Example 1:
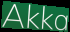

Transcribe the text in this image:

Akka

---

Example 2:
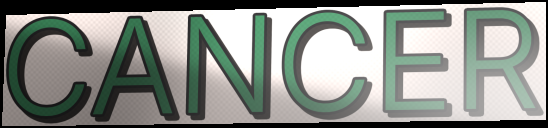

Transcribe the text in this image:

CANCER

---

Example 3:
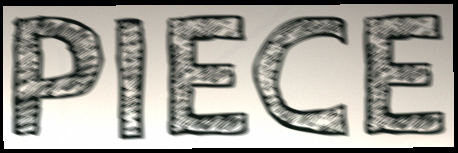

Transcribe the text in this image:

PIECE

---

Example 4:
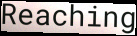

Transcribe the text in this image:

Reaching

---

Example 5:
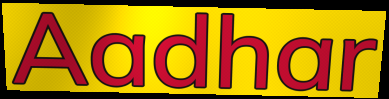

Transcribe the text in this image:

Aadhar